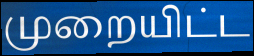
முறையிட்ட